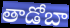
తాడోబా